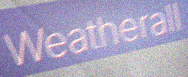
Weatherall